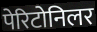
पेरिटोनिलर